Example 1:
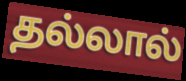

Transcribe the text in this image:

தல்லால்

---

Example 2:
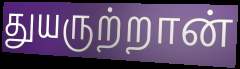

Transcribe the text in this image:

துயருற்றான்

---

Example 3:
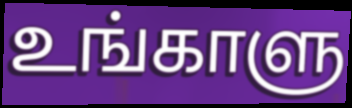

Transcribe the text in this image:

உங்காளு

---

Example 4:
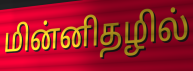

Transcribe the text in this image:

மின்னிதழில்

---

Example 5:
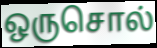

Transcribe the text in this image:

ஒருசொல்